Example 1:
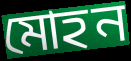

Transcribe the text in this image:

মোহন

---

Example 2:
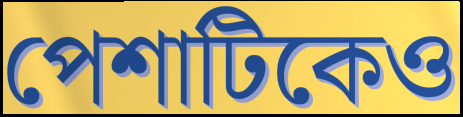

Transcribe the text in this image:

পেশাটিকেও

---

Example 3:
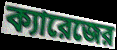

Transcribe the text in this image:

ক্যারেজের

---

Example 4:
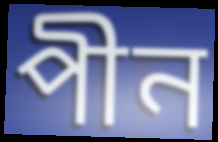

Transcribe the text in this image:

পীন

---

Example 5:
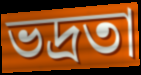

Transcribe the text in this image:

ভদ্রতা